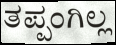
ತಪ್ಪಂಗಿಲ್ಲ